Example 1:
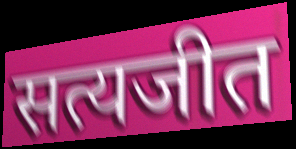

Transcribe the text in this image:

सत्यजीत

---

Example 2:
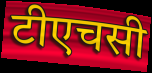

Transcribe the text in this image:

टीएचसी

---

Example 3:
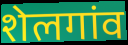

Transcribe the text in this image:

शेलगांव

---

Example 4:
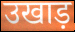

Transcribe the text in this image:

उखाड़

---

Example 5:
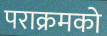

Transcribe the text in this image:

पराक्रमको